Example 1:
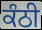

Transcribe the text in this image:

ਕੰਠੀ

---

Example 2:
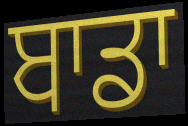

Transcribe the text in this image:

ਬਾਡਾ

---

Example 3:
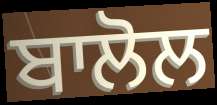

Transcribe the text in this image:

ਬਾਲੋਲ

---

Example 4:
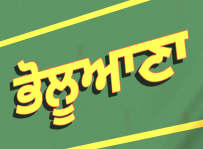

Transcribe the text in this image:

ਭੋਲੂਆਣਾ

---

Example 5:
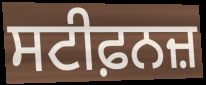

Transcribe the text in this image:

ਸਟੀਫ਼ਨਜ਼